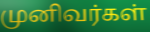
முனிவர்கள்